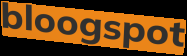
bloogspot